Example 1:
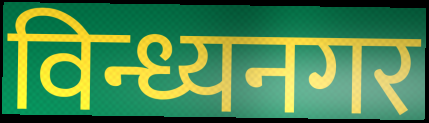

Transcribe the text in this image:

विन्ध्यनगर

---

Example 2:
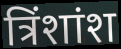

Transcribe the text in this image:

त्रिंशांश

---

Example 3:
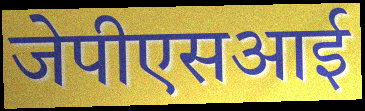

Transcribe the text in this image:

जेपीएसआई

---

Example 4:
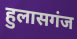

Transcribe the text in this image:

हुलासगंज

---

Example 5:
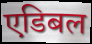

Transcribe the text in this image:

एडिबल